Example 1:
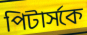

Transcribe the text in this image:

পিটার্সকে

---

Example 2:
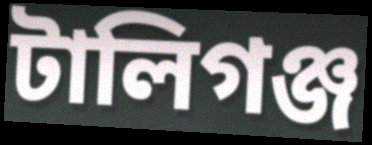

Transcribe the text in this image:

টালিগঞ্জ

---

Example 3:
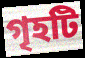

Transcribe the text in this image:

গৃহটি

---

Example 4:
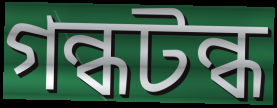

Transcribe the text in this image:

গন্ধটন্ধ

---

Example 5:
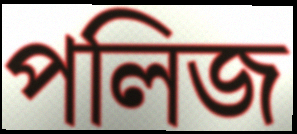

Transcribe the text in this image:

পলিজ